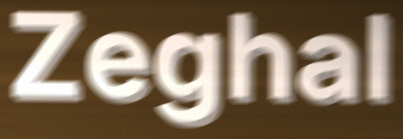
Zeghal